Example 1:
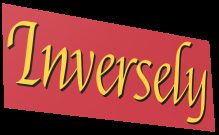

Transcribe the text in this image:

Inversely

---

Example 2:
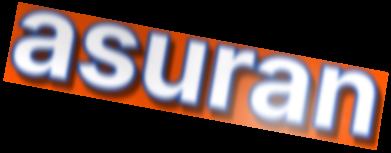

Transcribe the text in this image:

asuran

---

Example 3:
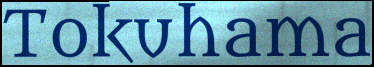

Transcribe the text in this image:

Tokuhama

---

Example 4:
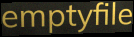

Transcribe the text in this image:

emptyfile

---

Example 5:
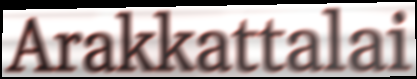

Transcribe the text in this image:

Arakkattalai